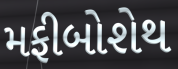
મફીબોશેથ